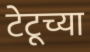
टेटूच्या